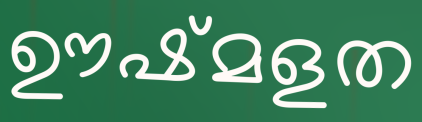
ഊഷ്മളത